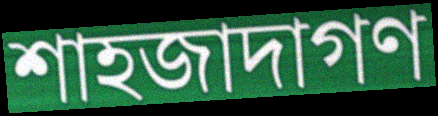
শাহজাদাগণ